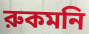
রুকমনি